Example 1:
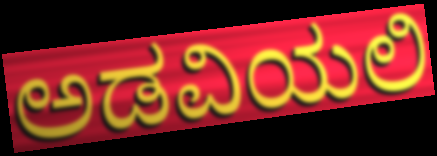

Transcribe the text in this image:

ಅಡವಿಯಲಿ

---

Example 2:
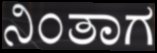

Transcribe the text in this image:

ನಿಂತಾಗ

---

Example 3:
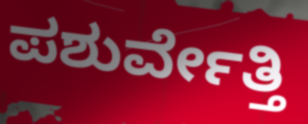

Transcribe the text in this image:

ಪಶುರ್ವೇತ್ತಿ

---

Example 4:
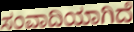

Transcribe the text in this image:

ಸಂವಾದಿಯಾಗಿದೆ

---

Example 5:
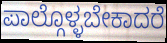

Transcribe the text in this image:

ಪಾಲ್ಗೊಳ್ಳಬೇಕಾದರೆ